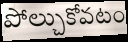
పోల్చుకోవటం